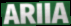
ARIIA